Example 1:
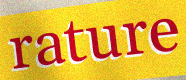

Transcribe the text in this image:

rature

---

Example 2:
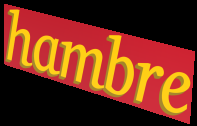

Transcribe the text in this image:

hambre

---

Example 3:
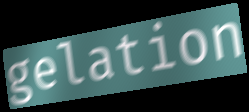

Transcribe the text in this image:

gelation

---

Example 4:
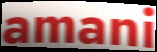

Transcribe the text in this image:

amani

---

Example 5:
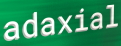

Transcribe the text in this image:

adaxial